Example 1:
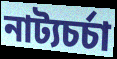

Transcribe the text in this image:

নাট্যচর্চা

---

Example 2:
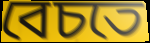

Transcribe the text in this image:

বেচতে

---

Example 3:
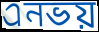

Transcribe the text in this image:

এনভয়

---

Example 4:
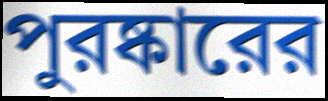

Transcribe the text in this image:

পুরষ্কারের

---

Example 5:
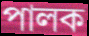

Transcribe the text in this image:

পালক